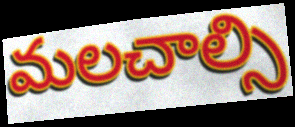
మలచాల్సి